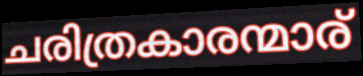
ചരിത്രകാരന്മാര്